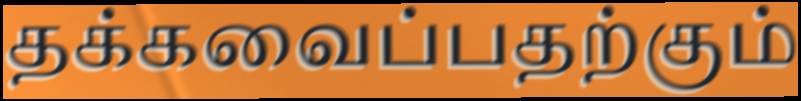
தக்கவைப்பதற்கும்